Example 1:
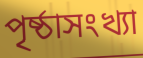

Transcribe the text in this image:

পৃষ্ঠাসংখ্যা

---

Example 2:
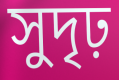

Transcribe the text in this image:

সুদৃঢ়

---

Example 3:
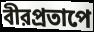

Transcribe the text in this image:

বীরপ্রতাপে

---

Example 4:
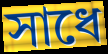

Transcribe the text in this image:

সাধে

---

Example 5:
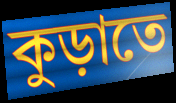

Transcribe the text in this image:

কুড়াতে